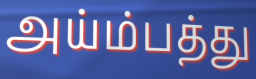
அய்ம்பத்து